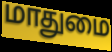
மாதுமை